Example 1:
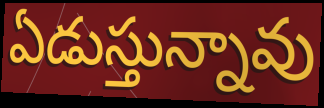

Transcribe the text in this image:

ఏడుస్తున్నావు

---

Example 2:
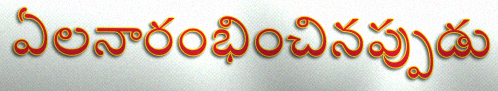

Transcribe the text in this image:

ఏలనారంభించినప్పుడు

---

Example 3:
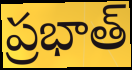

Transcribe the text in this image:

ప్రభాత్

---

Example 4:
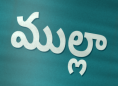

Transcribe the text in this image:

ముల్లా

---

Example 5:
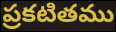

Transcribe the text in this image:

ప్రకటితము